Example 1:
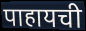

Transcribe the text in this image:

पाहायची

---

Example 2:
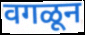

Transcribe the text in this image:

वगळून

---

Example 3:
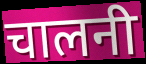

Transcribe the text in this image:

चालनी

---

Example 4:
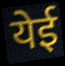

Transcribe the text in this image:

येई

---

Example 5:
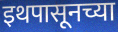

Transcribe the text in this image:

इथपासूनच्या